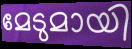
മേടുമായി